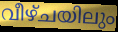
വീഴ്ചയിലും